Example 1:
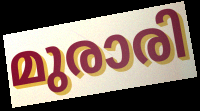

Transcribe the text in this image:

മുരാരി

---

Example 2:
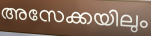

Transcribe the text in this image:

അസേക്കയിലും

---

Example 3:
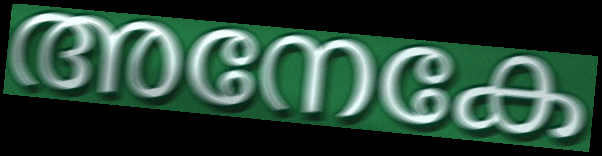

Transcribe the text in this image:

അനേകേ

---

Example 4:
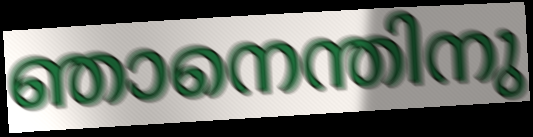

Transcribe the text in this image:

ഞാനെന്തിനു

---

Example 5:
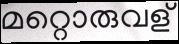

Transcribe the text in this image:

മറ്റൊരുവള്